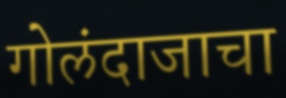
गोलंदाजाचा